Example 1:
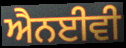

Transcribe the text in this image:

ਐਨਈਵੀ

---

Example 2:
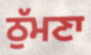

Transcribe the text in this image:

ਠੁੱਮਣਾ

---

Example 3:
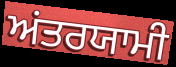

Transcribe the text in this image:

ਅਂਤਰਯਾਮੀ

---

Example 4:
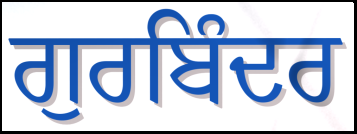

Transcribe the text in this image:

ਗੁਰਬਿੰਦਰ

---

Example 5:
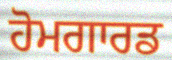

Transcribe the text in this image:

ਹੋਮਗਾਰਡ